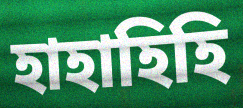
হাহাহিহি